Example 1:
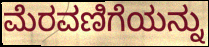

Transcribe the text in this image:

ಮೆರವಣಿಗೆಯನ್ನು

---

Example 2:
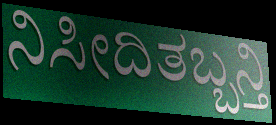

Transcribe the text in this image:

ನಿಸೀದಿತಬ್ಬನ್ತಿ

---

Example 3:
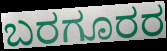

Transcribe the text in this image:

ಬರಗೂರರ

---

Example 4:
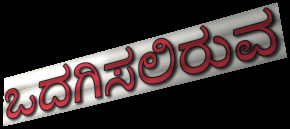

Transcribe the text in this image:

ಒದಗಿಸಲಿರುವ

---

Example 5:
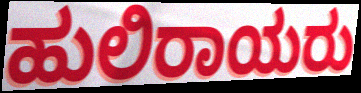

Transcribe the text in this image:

ಹುಲಿರಾಯರು